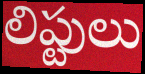
లిప్టులు